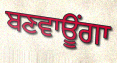
ਬਣਵਾਊਂਗਾ